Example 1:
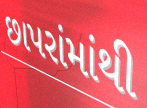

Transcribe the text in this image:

છાપરાંમાંથી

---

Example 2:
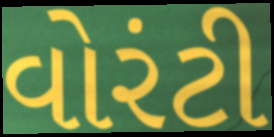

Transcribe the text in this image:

વોરંટી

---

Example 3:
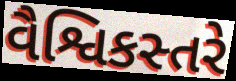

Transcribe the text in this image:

વૈશ્વિકસ્તરે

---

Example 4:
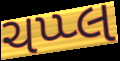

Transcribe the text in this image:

ચપ્પ્લ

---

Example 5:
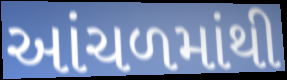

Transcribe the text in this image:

આંચળમાંથી